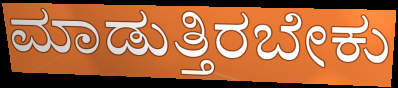
ಮಾಡುತ್ತಿರಬೇಕು